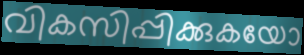
വികസിപ്പിക്കുകയോ